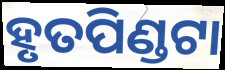
ହୃତପିଣ୍ଡଟା